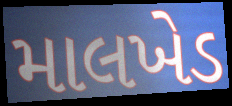
માલખેડ